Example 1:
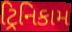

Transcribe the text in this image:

ટ્રિનિકામ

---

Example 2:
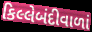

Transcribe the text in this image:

કિલ્લેબંદીવાળાં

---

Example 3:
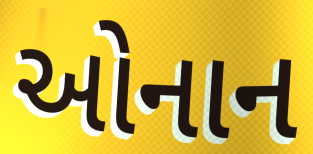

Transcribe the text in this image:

ઓનાન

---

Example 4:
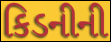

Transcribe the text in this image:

કિડનીની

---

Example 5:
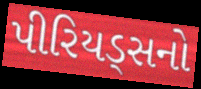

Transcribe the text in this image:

પીરિયડ્સનો